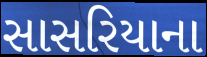
સાસરિયાના